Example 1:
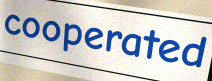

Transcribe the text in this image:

cooperated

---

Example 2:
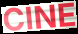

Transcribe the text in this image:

CINE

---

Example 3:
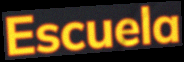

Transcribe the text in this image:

Escuela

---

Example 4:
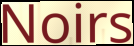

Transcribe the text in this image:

Noirs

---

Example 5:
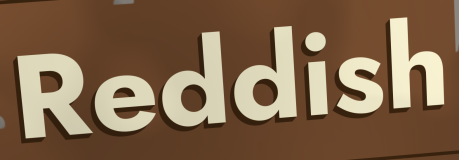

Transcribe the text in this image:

Reddish